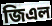
জিএল